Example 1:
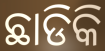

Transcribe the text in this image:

ଛାଡିକି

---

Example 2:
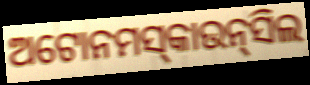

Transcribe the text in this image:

ଅଟୋନମସ୍‌କାଉନ୍‌ସିଲ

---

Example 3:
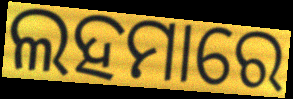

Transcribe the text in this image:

ଲହମାରେ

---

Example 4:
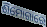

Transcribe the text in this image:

ଶିମୋଗାରେ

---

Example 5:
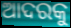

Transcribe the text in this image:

ଆଦରକୁ